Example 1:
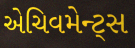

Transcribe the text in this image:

એચિવમેન્ટ્સ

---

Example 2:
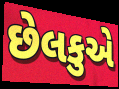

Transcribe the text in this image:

છેલકુએ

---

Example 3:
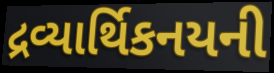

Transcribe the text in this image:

દ્રવ્યાર્થિકનયની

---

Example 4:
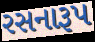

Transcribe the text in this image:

રસનારૂપ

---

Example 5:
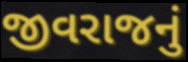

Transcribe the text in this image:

જીવરાજનું